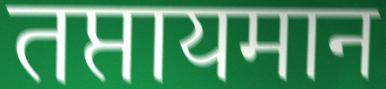
तप्तायमान